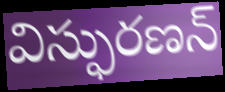
విస్ఫురణన్